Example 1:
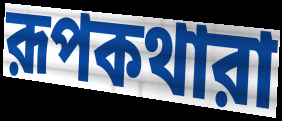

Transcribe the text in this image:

রূপকথারা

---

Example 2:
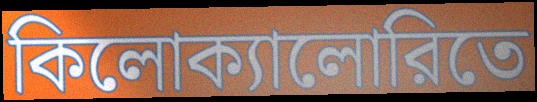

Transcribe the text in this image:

কিলোক্যালোরিতে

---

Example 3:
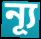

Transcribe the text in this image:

ন্যূ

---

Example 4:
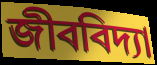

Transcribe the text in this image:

জীববিদ্যা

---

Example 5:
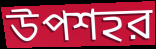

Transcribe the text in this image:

উপশহর